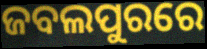
ଜବଲପୁରରେ